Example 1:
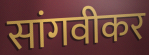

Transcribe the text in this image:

सांगवीकर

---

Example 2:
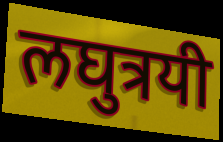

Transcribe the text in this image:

लघुत्रयी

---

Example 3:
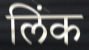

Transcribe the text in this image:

लिंक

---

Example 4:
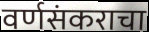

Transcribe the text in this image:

वर्णसंकराचा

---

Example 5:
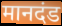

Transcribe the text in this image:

मानदंड